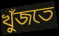
খুঁজতে